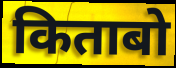
किताबो